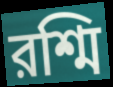
রশ্মি